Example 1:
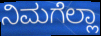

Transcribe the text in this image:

ನಿಮಗೆಲ್ಲಾ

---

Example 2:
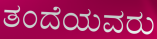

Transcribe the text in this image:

ತಂದೆಯವರು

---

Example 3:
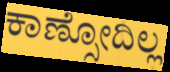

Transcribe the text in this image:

ಕಾಣ್ಸೋದಿಲ್ಲ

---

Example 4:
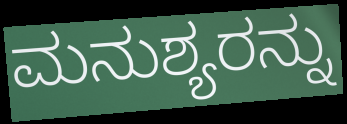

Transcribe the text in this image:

ಮನುಶ್ಯರನ್ನು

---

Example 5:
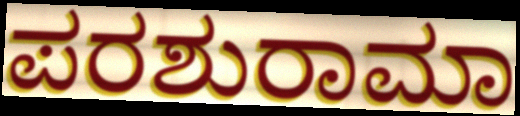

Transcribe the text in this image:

ಪರಶುರಾಮಾ